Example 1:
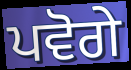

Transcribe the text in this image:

ਪਵੋਗੇ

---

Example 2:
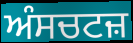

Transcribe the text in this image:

ਅੰਸਚਟਜ਼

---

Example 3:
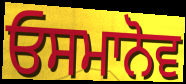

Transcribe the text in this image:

ਓਸਮਾਨੋਵ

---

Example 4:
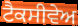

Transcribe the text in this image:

ਟੈਕਸੀਵੇਅ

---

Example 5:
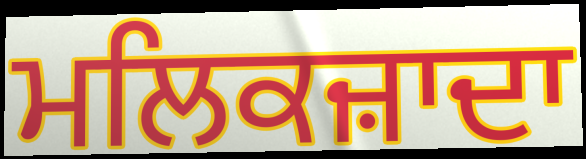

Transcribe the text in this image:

ਮਲਿਕਜ਼ਾਦਾ